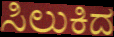
ಸಿಲುಕಿದ